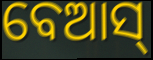
ବେଆସ୍